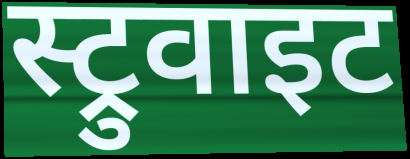
स्ट्रुवाइट